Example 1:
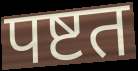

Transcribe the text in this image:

पष्टत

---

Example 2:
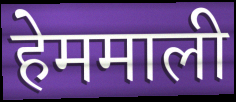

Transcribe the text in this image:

हेममाली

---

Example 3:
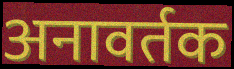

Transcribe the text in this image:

अनावर्तक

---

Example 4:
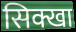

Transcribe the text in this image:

सिक्खा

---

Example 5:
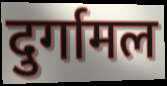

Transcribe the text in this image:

दुर्गामल